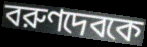
বরুণদেবকে